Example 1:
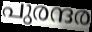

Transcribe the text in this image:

പുരന്ദര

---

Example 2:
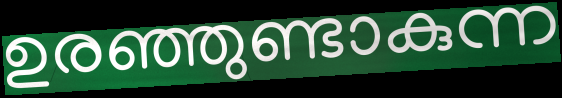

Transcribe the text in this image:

ഉരഞ്ഞുണ്ടാകുന്ന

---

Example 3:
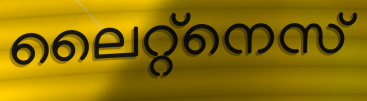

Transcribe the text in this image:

ലൈറ്റ്നെസ്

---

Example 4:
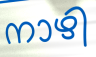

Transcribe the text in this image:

നാഴി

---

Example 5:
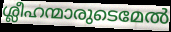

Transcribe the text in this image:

ശ്ലീഹന്മാരുടെമേൽ